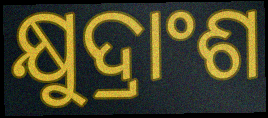
କ୍ଷୁଦ୍ରାଂଶ